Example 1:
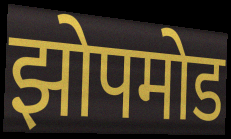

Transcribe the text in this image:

झोपमोड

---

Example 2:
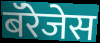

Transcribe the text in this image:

बॅरेजेस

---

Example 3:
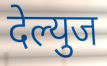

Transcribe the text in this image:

देल्युज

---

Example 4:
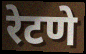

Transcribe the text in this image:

रेटणे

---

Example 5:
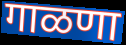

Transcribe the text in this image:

गाळणा